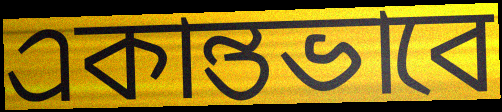
একান্তভাবে